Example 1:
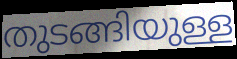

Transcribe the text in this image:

തുടങ്ങിയുള്ള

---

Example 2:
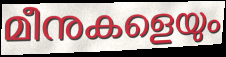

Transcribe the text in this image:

മീനുകളെയും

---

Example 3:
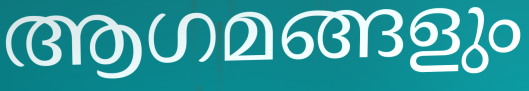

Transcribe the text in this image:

ആഗമങ്ങളും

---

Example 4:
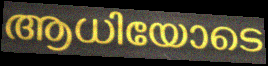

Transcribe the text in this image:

ആധിയോടെ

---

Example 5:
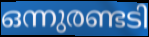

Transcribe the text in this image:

ഒന്നുരണ്ടടി